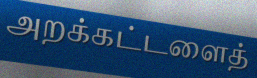
அறக்கட்டளைத்